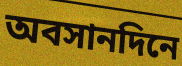
অবসানদিনে